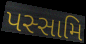
પસ્સામિ